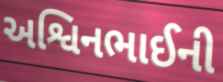
અશ્વિનભાઈની